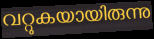
വറ്റുകയായിരുന്നു